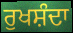
ਰੁਖਸ਼ੰਦਾ